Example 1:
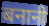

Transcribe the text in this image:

बनानी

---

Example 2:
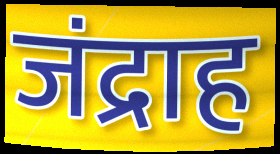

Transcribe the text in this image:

जंद्राह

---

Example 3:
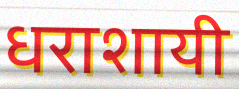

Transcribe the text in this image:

धराशायी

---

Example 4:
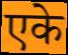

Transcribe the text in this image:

एके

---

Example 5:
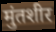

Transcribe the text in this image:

मुंतशीर